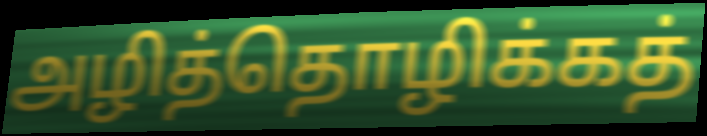
அழித்தொழிக்கத்